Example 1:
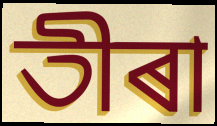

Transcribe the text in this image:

তীৰা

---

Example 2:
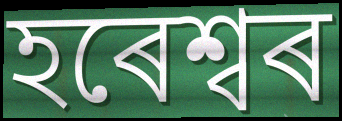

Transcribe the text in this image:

হৰেশ্বৰ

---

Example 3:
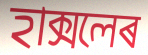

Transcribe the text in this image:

হাক্সলেৰ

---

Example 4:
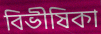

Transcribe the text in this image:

বিভীষিকা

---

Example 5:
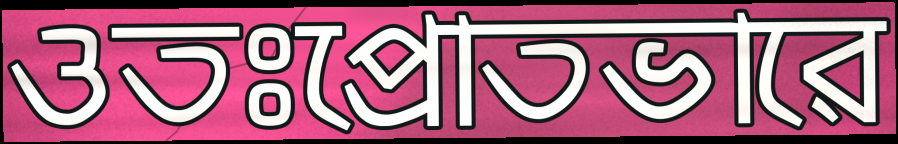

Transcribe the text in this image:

ওতঃপ্ৰোতভাৱে